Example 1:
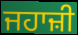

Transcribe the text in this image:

ਜਹਾਜ਼ੀ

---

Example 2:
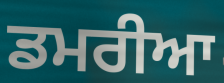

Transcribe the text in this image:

ਡਮਰੀਆ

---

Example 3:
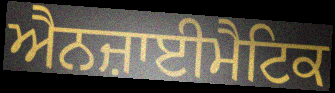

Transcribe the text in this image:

ਐਨਜ਼ਾਈਮੈਟਿਕ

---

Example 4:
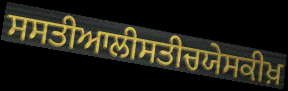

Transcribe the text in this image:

ਸਸਤੀਆਲੀਸਤੀਚਯੇਸਕੀਖ਼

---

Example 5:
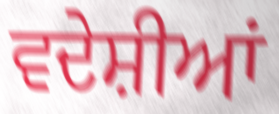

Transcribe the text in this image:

ਵਦੇਸ਼ੀਆਂ